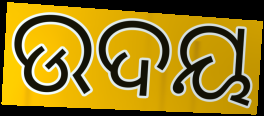
ଉଦୟ